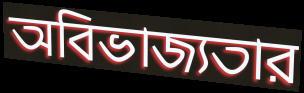
অবিভাজ্যতার